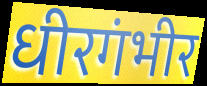
धीरगंभीर